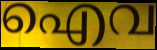
ഐവ